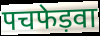
पचफेड़वा